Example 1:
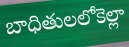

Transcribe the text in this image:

బాధితులలోకెల్లా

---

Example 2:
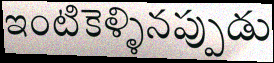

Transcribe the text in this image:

ఇంటికెళ్ళినప్పుడు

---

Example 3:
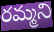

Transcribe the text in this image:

రమ్మని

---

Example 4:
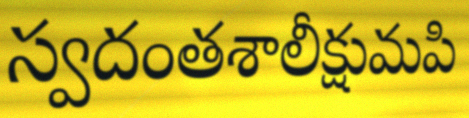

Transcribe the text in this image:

స్వదంతశాలీక్షుమపి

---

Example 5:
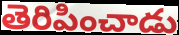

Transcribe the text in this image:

తెరిపించాడు